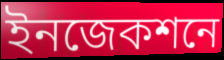
ইনজেকশনে